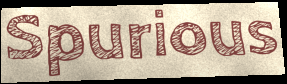
Spurious